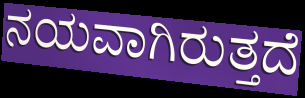
ನಯವಾಗಿರುತ್ತದೆ